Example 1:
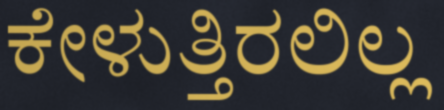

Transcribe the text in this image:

ಕೇಳುತ್ತಿರಲಿಲ್ಲ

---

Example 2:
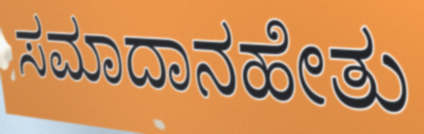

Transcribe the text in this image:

ಸಮಾದಾನಹೇತು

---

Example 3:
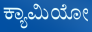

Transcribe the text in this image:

ಕ್ಯಾಮಿಯೋ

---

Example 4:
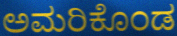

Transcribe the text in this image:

ಅಮರಿಕೊಂಡ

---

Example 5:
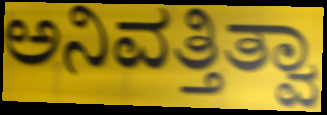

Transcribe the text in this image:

ಅನಿವತ್ತಿತ್ವಾ